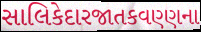
સાલિકેદારજાતકવણ્ણના